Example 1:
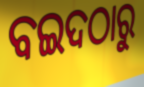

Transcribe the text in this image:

ବଇଦଠାରୁ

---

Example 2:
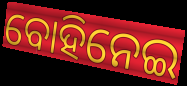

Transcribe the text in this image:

ବୋହିନେଇ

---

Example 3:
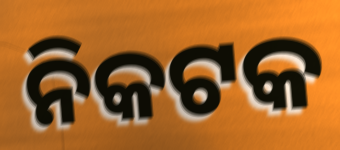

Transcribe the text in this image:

ନିକଟକ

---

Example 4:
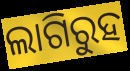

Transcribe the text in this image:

ଲାଗିରୁହ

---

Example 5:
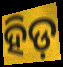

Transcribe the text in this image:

ହିଡ଼